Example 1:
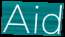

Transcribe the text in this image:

Aid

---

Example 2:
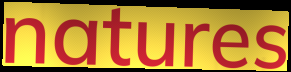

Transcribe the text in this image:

natures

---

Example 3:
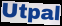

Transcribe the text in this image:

Utpal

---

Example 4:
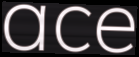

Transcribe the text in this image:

ace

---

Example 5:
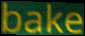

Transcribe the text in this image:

bake